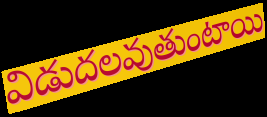
విడుదలవుతుంటాయి